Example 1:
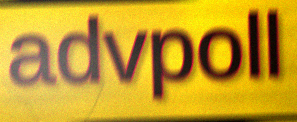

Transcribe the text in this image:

advpoll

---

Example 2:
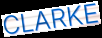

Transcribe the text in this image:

CLARKE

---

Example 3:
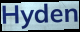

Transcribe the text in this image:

Hyden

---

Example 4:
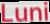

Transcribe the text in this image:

Luni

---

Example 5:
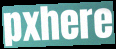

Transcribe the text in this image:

pxhere